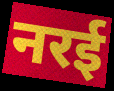
नरई